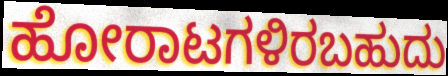
ಹೋರಾಟಗಳಿರಬಹುದು